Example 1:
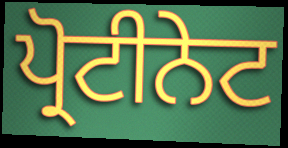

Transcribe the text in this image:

ਪ੍ਰੋਟੀਨੇਟ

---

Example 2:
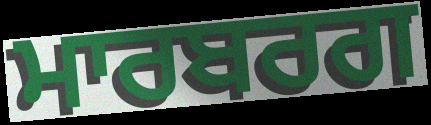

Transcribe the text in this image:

ਮਾਰਬਰਗ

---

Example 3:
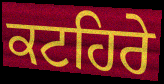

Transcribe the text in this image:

ਕਟਹਿਰੇ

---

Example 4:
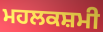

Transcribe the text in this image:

ਮਹਲਕਸ਼ਮੀ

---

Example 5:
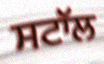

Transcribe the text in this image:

ਸਟਾੱਲ